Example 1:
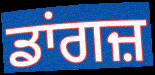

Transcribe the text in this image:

ਡਾਂਗਜ਼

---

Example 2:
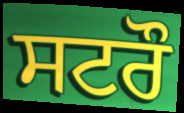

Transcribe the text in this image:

ਸਟਰੌ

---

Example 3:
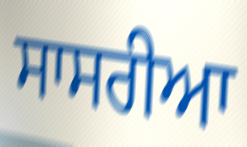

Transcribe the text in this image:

ਸਾਸਰੀਆ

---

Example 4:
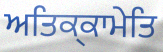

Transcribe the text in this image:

ਅਤਿਕ੍ਕਾਮੇਤਿ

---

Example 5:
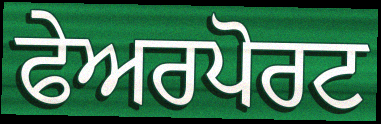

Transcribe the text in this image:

ਫੇਅਰਪੋਰਟ